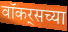
वॉकर्सच्या